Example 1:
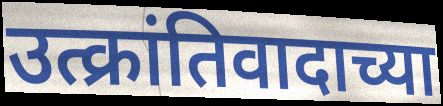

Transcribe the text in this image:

उत्क्रांतिवादाच्या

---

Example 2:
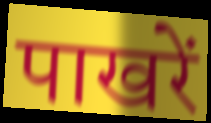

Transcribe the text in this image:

पाखरें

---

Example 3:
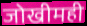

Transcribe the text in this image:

जोखीमही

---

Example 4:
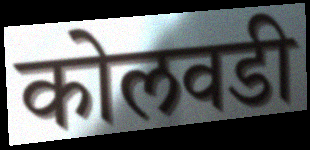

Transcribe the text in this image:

कोलवडी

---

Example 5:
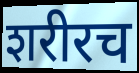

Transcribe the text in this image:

शरीरच